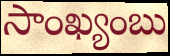
సాంఖ్యంబు